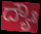
ದ್ಯೌಃ